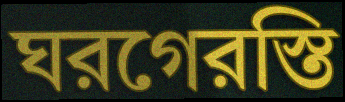
ঘরগেরস্তি